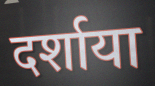
दर्शाया